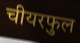
चीयरफुल